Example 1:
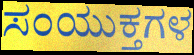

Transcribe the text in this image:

ಸಂಯುಕ್ತಗಳ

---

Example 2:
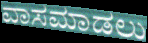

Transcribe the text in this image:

ವಾಸಮಾಡಲು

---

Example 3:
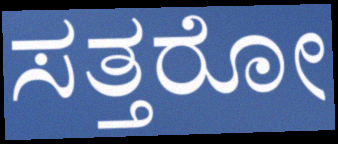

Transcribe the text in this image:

ಸತ್ತರೋ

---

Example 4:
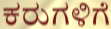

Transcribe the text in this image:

ಕರುಗಳಿಗೆ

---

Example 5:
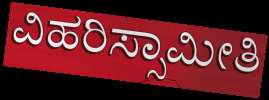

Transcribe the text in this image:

ವಿಹರಿಸ್ಸಾಮೀತಿ